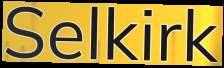
Selkirk